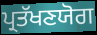
ਪ੍ਰਤੱਖਣਯੋਗ